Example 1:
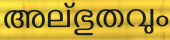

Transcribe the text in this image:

അല്ഭുതവും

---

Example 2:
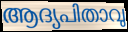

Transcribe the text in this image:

ആദ്യപിതാവു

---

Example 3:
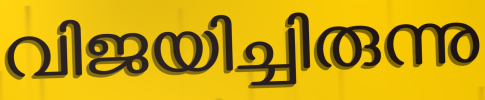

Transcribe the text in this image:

വിജയിച്ചിരുന്നു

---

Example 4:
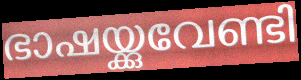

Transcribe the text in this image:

ഭാഷയ്ക്കുവേണ്ടി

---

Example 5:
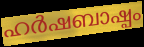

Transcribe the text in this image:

ഹർഷബാഷ്പം